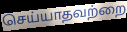
செய்யாதவற்றை